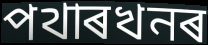
পথাৰখনৰ